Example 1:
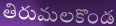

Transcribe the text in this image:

తిరుమలకొండ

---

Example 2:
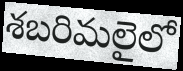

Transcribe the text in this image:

శబరిమలైలో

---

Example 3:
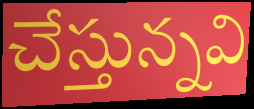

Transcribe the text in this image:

చేస్తున్నవి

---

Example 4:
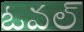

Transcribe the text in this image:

ఓవల్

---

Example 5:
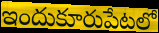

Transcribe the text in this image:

ఇందుకూరుపేటలో